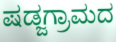
ಷಡ್ಜಗ್ರಾಮದ